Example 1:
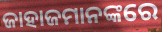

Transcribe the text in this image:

ଜାହାଜମାନଙ୍କରେ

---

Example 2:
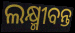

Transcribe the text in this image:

ଲକ୍ଷ୍ମୀବନ୍ତ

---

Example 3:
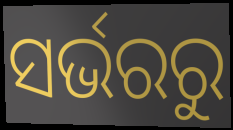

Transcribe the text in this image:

ସର୍ଭରରୁ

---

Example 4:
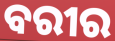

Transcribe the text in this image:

ବରୀର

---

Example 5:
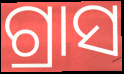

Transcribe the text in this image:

ଗ୍ରାସ